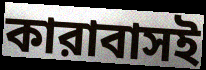
কারাবাসই